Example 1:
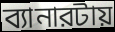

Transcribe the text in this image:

ব্যানারটায়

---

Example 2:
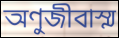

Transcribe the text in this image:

অণুজীবাস্ম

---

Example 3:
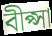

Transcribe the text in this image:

বীপ্সা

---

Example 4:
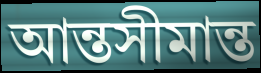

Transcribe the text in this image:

আন্তসীমান্ত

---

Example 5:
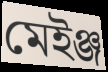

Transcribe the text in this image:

মেইঞ্জ